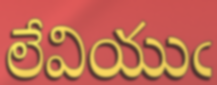
లేవియుఁ